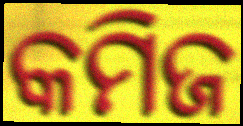
କମିଜ